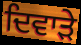
ਦਿਵਾੜੇ